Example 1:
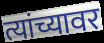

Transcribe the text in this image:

त्यांच्यावर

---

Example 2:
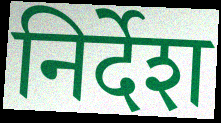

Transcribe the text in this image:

निर्देश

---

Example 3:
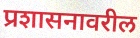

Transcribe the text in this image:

प्रशासनावरील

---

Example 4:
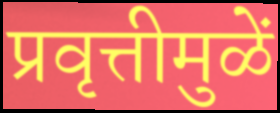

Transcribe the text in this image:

प्रवृत्तीमुळें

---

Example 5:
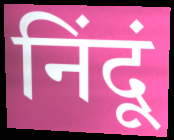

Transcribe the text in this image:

निंदूं